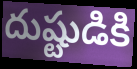
దుష్టుడికి